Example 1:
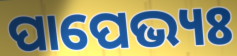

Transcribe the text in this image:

ପାପେଭ୍ୟଃ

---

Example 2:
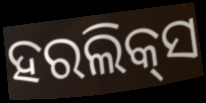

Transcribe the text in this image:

ହରଲିକ୍‌ସ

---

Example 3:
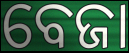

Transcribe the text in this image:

ବେଜା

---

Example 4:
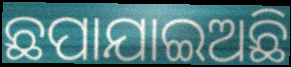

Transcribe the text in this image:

ଛପାଯାଇଅଛି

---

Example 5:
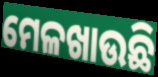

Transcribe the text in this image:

ମେଳଖାଉଛି